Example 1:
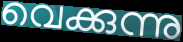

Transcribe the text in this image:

വെക്കുന്നു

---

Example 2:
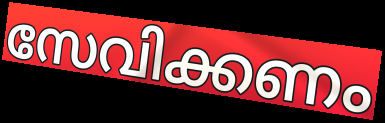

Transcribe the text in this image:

സേവിക്കണം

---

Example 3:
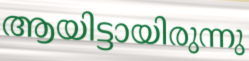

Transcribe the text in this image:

ആയിട്ടായിരുന്നു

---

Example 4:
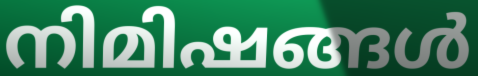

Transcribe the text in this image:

നിമിഷങ്ങൾ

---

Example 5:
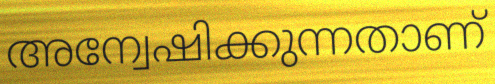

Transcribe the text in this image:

അന്വേഷിക്കുന്നതാണ്